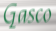
Gasco